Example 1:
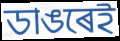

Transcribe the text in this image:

ডাঙৰেই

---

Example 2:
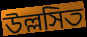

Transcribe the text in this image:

উল্লসিত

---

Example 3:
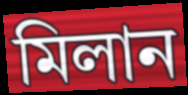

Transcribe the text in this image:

মিলান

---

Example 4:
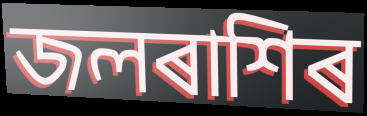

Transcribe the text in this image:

জলৰাশিৰ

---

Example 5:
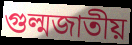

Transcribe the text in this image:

গুল্মজাতীয়